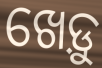
ଖେଡ଼ୁ